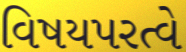
વિષયપરત્વે